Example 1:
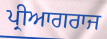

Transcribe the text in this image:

ਪ੍ਰੀਆਗਰਾਜ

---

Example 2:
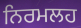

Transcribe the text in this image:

ਨਿਰਮਲਹ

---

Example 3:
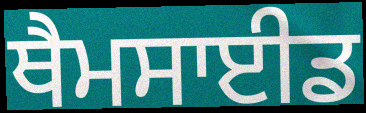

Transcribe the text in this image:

ਥੈਮਸਾਈਡ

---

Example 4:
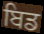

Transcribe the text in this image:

ਬਿਡ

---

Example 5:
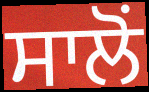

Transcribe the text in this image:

ਸਾਲੋਂ